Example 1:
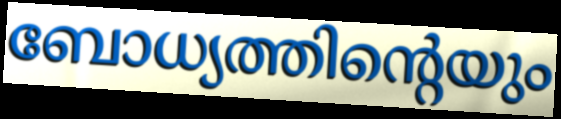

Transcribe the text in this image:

ബോധ്യത്തിന്റെയും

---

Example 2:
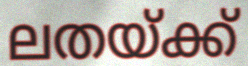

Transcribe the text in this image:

ലതയ്ക്ക്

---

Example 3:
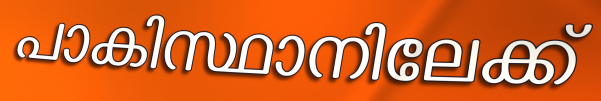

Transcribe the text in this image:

പാകിസ്ഥാനിലേക്ക്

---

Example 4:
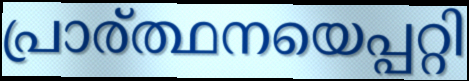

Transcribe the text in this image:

പ്രാര്ത്ഥനയെപ്പറ്റി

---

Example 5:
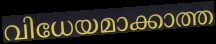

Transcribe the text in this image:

വിധേയമാക്കാത്ത